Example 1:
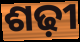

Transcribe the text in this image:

ଶଢ଼ୀ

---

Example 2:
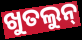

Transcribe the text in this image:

ଖୁତଲୁନ୍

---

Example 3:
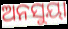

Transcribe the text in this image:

ଅନସୁୟା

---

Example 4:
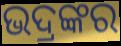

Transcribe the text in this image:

ଭଦ୍ରଙ୍କର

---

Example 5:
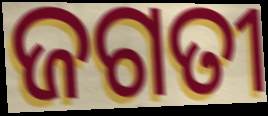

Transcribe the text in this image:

ଜଗତୀ